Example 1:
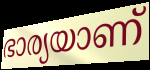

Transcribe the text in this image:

ഭാര്യയാണ്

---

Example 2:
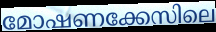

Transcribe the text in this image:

മോഷണക്കേസിലെ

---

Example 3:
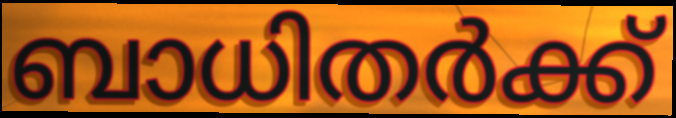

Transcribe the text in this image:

ബാധിതർക്ക്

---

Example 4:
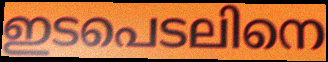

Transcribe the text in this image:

ഇടപെടലിനെ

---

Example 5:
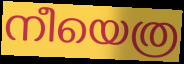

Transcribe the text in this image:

നീയെത്ര